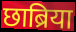
छाब्रिया